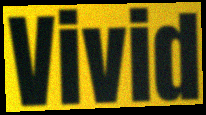
Vivid